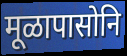
मूळापासोनि